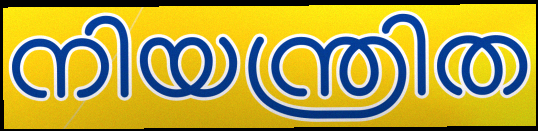
നിയന്ത്രിത